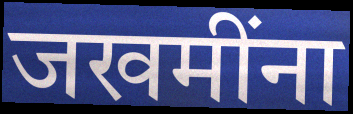
जखमींना